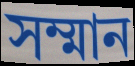
সম্মান